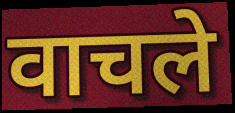
वाचले